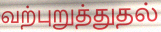
வற்புறுத்துதல்